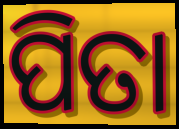
ପିତା